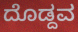
ದೊಡ್ದವ